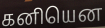
கனியென